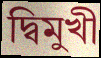
দ্বিমুখী